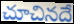
చూచినదే